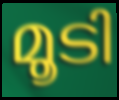
മൂടി